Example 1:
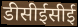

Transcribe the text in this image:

डीसीईसीई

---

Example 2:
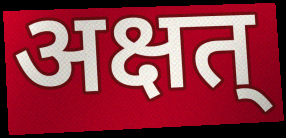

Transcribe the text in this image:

अक्षत्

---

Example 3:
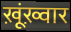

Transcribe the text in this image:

ख़ूंख़्वार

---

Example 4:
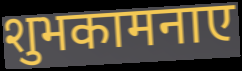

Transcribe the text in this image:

शुभकामनाए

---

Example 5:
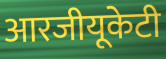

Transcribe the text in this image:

आरजीयूकेटी